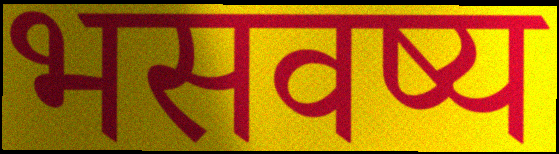
भसवष्य